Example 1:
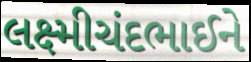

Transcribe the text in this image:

લક્ષ્મીચંદભાઈને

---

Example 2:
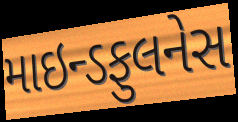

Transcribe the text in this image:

માઇન્ડફુલનેસ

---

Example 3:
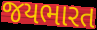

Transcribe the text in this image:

જયભારત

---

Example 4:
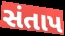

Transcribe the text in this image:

સંતાપ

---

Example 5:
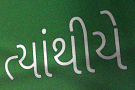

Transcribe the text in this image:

ત્યાંથીયે